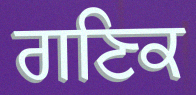
ਗਣਿਕ